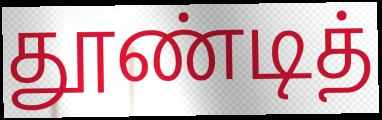
தூண்டித்